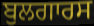
ਬੁਲਗਾਰਸ